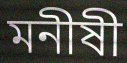
মনীষী